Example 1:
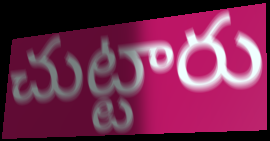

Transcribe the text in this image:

చుట్టారు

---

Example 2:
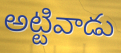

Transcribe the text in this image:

అట్టివాడు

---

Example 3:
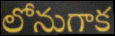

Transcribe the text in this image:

లోనుగాక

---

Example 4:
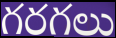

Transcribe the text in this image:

గరగలు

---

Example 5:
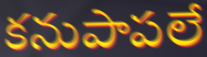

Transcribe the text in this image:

కనుపాపలే